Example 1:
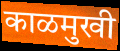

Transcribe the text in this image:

काळमुखी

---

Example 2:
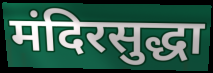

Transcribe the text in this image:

मंदिरसुद्धा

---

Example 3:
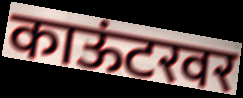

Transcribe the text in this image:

काऊंटरवर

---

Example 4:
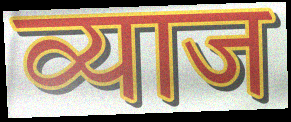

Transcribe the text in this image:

व्याज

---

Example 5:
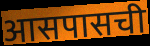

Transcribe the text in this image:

आसपासची